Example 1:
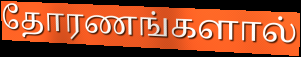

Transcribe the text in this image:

தோரணங்களால்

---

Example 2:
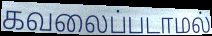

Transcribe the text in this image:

கவலைப்படாமல்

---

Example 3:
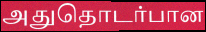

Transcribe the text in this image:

அதுதொடர்பான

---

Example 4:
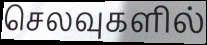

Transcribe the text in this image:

செலவுகளில்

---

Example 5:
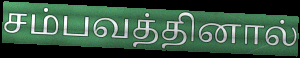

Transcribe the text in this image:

சம்பவத்தினால்